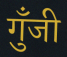
गुँजी